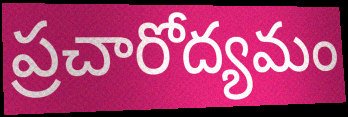
ప్రచారోద్యమం